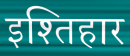
इश्तिहार